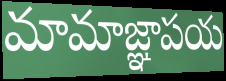
మామాజ్ఞాపయ